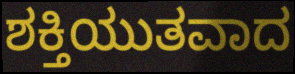
ಶಕ್ತಿಯುತವಾದ